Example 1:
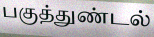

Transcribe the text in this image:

பகுத்துண்டல்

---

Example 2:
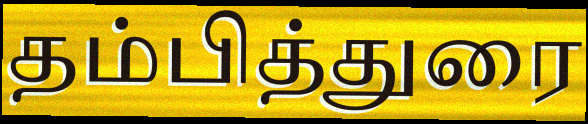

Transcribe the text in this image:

தம்பித்துரை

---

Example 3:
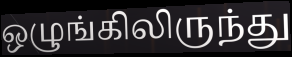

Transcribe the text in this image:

ஒழுங்கிலிருந்து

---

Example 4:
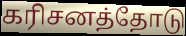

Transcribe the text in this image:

கரிசனத்தோடு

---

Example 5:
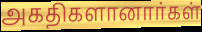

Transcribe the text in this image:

அகதிகளானார்கள்